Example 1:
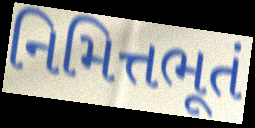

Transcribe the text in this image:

નિમિત્તભૂતં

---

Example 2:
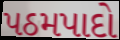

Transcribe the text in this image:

પઠમપાદો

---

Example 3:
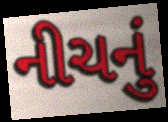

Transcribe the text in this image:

નીચનું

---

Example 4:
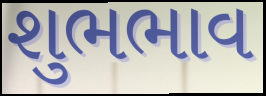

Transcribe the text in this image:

શુભભાવ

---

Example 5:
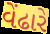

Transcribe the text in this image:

વેંઢારે